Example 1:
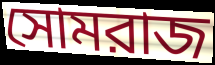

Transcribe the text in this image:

সোমরাজ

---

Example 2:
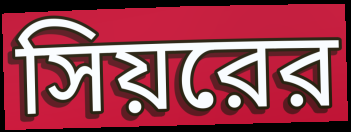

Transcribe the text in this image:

সিয়রের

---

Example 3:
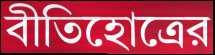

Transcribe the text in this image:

বীতিহোত্রের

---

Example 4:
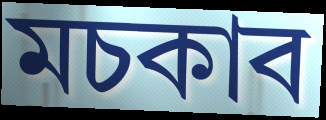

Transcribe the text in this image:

মচকাব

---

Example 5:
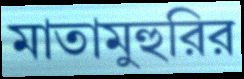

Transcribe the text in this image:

মাতামুহুরির